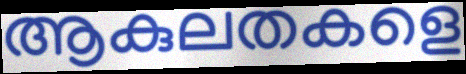
ആകുലതകളെ